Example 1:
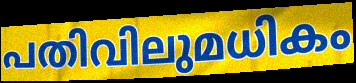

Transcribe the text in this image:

പതിവിലുമധികം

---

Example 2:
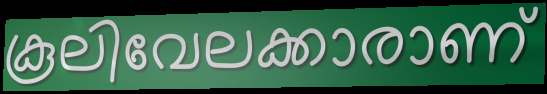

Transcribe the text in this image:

കൂലിവേലക്കാരാണ്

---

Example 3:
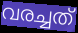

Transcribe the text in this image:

വരച്ചത്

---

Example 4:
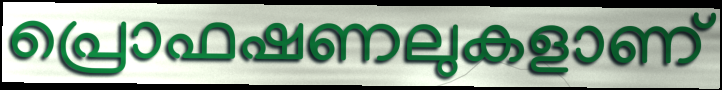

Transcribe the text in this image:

പ്രൊഫഷണലുകളാണ്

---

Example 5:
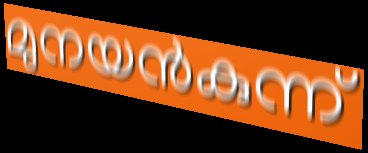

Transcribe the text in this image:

മുനയൻകുന്ന്